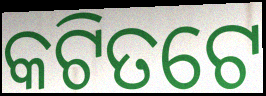
କଟିତଟେ